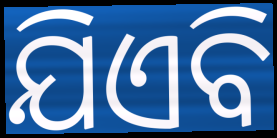
ଯିଏବି